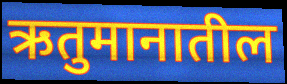
ऋतुमानातील